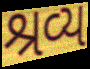
શ્રવ્ય